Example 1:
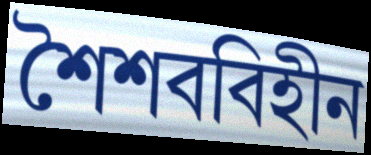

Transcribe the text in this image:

শৈশববিহীন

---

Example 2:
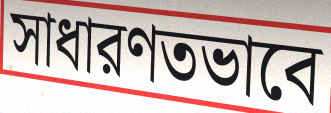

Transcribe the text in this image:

সাধারণতভাবে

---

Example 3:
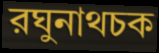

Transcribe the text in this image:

রঘুনাথচক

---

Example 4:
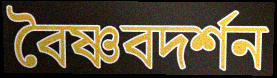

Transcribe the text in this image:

বৈষ্ণবদর্শন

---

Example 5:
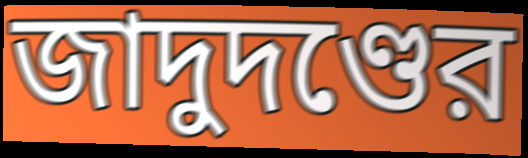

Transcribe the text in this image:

জাদুদণ্ডের